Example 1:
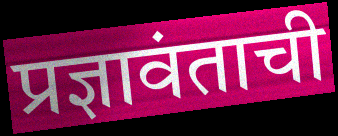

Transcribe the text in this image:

प्रज्ञावंताची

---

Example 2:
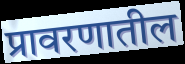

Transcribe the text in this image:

प्रावरणातील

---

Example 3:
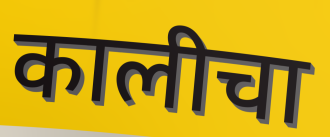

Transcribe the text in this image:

कालीचा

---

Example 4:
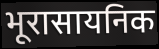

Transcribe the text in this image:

भूरासायनिक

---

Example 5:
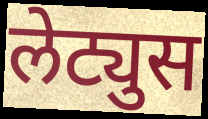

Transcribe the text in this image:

लेट्युस